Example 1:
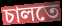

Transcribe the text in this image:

চালতে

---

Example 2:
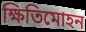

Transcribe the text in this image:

ক্ষিতিমোহন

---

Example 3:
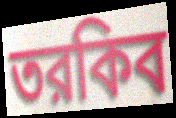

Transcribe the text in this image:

তরকিব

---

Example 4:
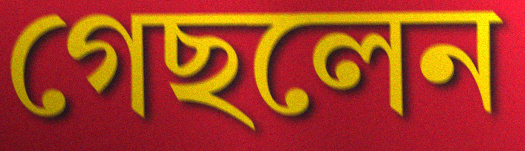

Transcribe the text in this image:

গেছলেন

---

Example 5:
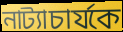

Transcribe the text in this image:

নাট্যাচার্যকে